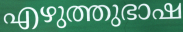
എഴുത്തുഭാഷ